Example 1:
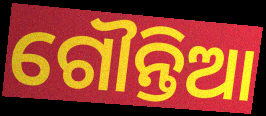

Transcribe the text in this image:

ଗୌନ୍ତିଆ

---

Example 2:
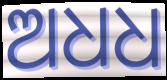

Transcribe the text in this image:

ଅଧଧ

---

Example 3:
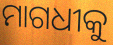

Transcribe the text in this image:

ମାଗଧୀକୁ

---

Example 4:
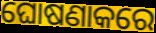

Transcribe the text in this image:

ଘୋଷଣାକରେ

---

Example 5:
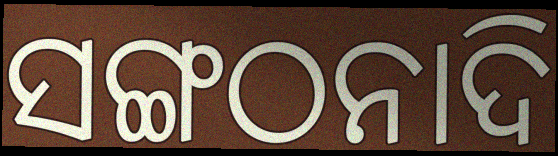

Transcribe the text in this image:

ସଙ୍ଗଠନାଦି